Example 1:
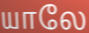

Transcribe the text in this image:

யாலே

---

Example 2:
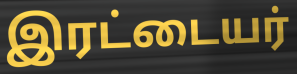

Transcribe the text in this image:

இரட்டையர்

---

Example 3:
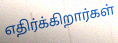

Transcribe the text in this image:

எதிர்க்கிறார்கள்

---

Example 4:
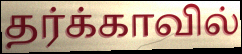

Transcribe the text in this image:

தர்க்காவில்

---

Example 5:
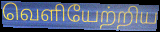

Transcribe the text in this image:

வெளியேற்றிய